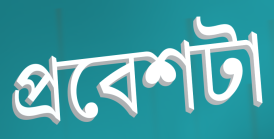
প্রবেশটা